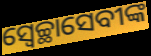
ସ୍ୱେଚ୍ଛାସେବୀଙ୍କ